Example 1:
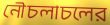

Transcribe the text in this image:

নৌচলাচলের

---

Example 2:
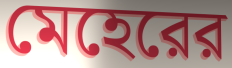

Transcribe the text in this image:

মেহেরের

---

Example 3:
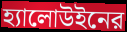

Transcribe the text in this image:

হ্যালোউইনের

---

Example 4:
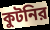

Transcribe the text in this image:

কুটনির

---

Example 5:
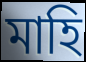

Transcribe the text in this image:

মাহি